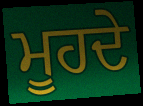
ਮੂਹਦੇ